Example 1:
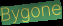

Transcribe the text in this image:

Bygone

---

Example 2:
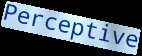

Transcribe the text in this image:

Perceptive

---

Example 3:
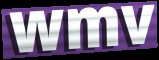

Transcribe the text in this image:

wmv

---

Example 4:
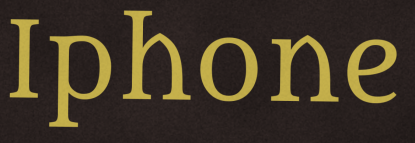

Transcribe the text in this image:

Iphone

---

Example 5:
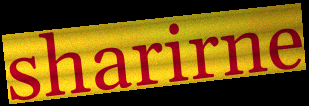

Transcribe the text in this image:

sharirne